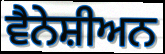
ਵੈਨੇਸ਼ੀਅਨ